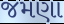
જમણા